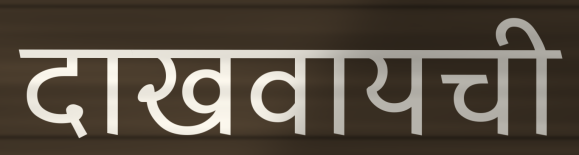
दाखवायची